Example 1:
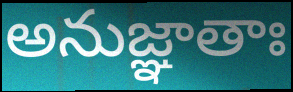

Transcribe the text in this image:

అనుజ్ఞాతాః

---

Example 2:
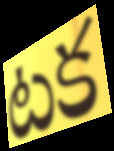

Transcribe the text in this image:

టక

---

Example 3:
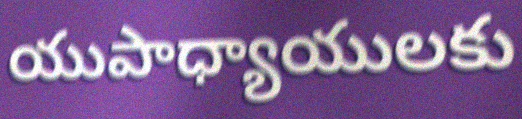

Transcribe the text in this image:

యుపాధ్యాయులకు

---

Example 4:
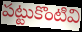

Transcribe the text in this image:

పట్టుకొంటివి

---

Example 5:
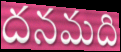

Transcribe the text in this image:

దనమది